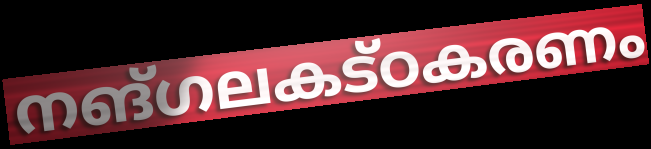
നങ്ഗലകട്ഠകരണം